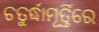
ଚତୁର୍ଦ୍ଧାମୂର୍ତ୍ତିରେ